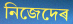
নিজেদেৰ